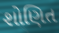
શોણિત